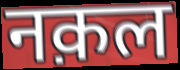
नक़ल